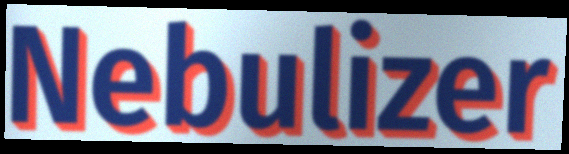
Nebulizer